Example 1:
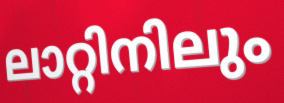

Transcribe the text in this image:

ലാറ്റിനിലും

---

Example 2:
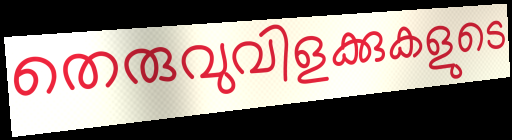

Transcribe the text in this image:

തെരുവുവിളക്കുകളുടെ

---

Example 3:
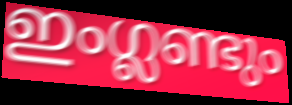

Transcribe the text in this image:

ഇംഗ്ലണ്ടും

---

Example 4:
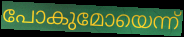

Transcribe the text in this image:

പോകുമോയെന്ന്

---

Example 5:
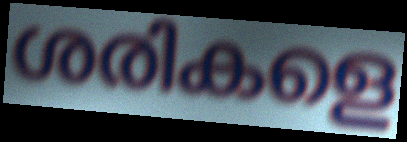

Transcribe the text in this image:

ശരികളെ